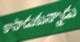
కాపాడుకున్నాడు